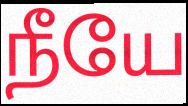
நீயே